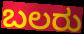
ಬಲರು